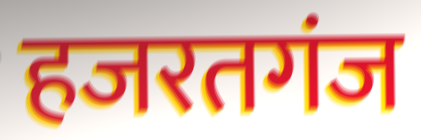
हजरतगंज